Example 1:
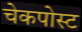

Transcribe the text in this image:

चेकपोस्ट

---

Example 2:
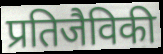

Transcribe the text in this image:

प्रतिजैविकी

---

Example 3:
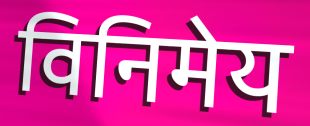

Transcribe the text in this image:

विनिमेय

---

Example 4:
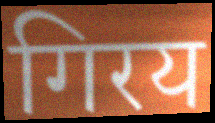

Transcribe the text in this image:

गिरय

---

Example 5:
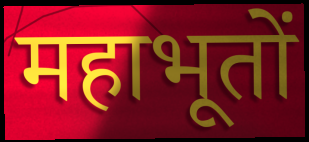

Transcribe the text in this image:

महाभूतों